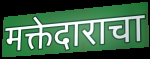
मक्तेदाराचा